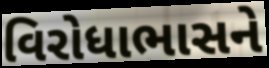
વિરોધાભાસને